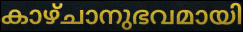
കാഴ്ചാനുഭവമായി